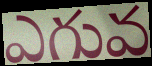
ఎగువ